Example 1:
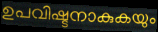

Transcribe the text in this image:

ഉപവിഷ്ടനാകുകയും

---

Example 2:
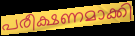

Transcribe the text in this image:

പരീക്ഷണമാക്കി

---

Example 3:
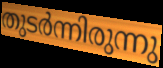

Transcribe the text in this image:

തുടർന്നിരുന്നു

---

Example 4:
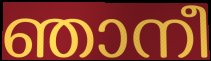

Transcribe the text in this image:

ഞാനീ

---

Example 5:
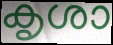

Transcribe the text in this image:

കൃശാ